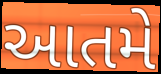
આતમે